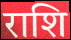
राशि